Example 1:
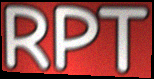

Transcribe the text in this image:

RPT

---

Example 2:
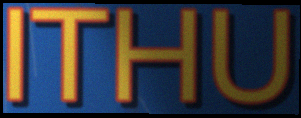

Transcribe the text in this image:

ITHU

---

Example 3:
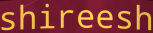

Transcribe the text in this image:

shireesh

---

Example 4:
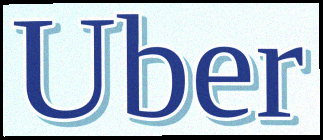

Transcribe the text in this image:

Uber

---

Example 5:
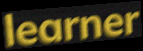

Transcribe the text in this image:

learner